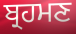
ਬ੍ਰਹਮਣ